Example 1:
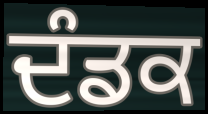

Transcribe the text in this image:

ਦੰਡਕ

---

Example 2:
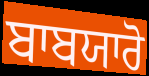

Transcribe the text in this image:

ਬਾਬਯਾਰੋ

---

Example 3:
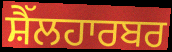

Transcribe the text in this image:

ਸ਼ੈੱਲਹਾਰਬਰ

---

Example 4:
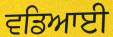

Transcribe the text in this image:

ਵਡਿਆਈ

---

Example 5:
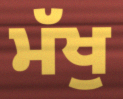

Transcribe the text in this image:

ਮੱਖੁ